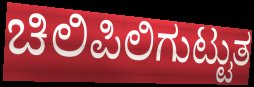
ಚಿಲಿಪಿಲಿಗುಟ್ಟುತ